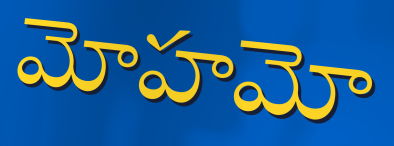
మోహమో